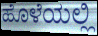
ಹೊಳೆಯಲ್ಲಿ